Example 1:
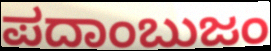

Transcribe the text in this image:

ಪದಾಂಬುಜಂ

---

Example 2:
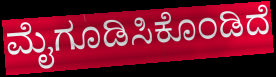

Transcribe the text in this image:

ಮೈಗೂಡಿಸಿಕೊಂಡಿದೆ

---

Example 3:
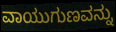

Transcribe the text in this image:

ವಾಯುಗುಣವನ್ನು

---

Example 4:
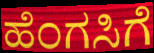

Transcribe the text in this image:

ಹೆಂಗಸಿಗೆ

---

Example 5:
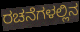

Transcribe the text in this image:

ರಚನೆಗಳಲ್ಲಿನ